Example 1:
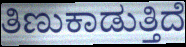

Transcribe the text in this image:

ತಿಣುಕಾಡುತ್ತಿದೆ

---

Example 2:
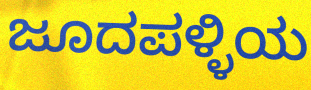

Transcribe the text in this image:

ಜೂದಪಳ್ಳಿಯ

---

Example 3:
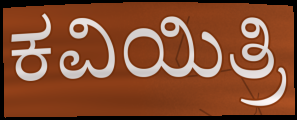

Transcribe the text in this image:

ಕವಿಯಿತ್ರಿ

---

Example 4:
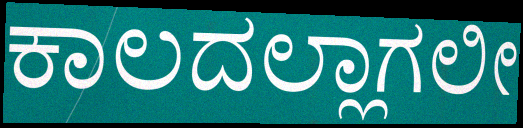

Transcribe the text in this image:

ಕಾಲದಲ್ಲಾಗಲೀ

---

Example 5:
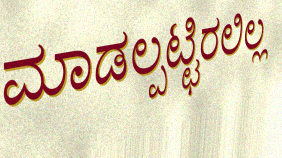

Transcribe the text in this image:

ಮಾಡಲ್ಪಟ್ಟಿರಲಿಲ್ಲ